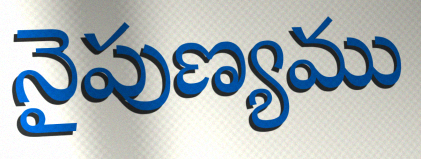
నైపుణ్యము